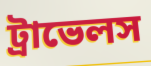
ট্রাভেলস